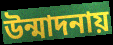
উন্মাদনায়